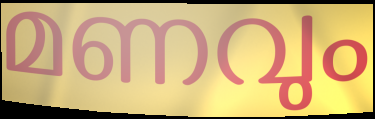
മണവും